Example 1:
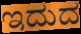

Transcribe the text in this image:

ಇದುದ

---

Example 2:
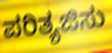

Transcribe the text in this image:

ಪರಿತ್ಯಜಿಸು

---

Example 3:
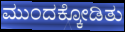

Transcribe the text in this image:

ಮುಂದಕ್ಕೋಡಿತು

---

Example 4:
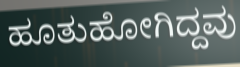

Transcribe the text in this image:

ಹೂತುಹೋಗಿದ್ದವು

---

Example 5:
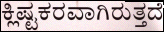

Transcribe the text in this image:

ಕ್ಲಿಷ್ಟಕರವಾಗಿರುತ್ತದೆ